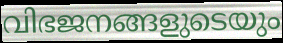
വിഭജനങ്ങളുടെയും